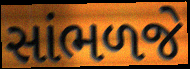
સાંભળજે